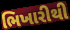
ભિખારીથી